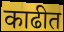
काढीत